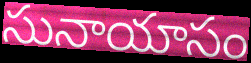
సునాయాసం